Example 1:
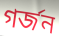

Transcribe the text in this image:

গর্জন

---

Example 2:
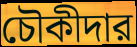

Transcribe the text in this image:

চৌকীদার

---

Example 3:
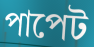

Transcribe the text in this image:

পাপেট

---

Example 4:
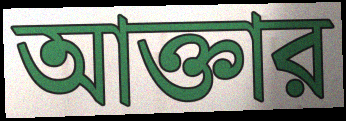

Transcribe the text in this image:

আক্তার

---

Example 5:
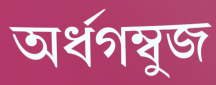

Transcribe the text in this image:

অর্ধগম্বুজ